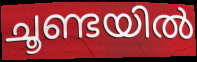
ചൂണ്ടയിൽ